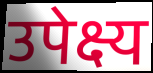
उपेक्ष्य